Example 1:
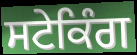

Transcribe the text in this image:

ਸਟੇਕਿੰਗ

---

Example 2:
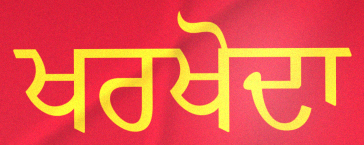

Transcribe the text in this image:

ਖਰਖੋਦਾ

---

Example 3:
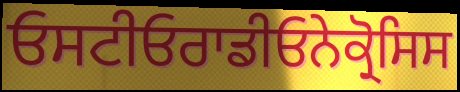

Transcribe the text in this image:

ਓਸਟੀਓਰਾਡੀਓਨੇਕ੍ਰੋਸਿਸ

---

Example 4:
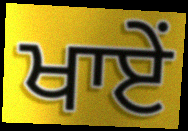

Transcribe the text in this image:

ਖਾਏਂ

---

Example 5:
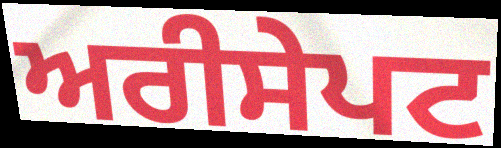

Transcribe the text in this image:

ਅਰੀਸੇਪਟ